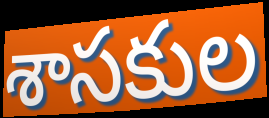
శాసకుల